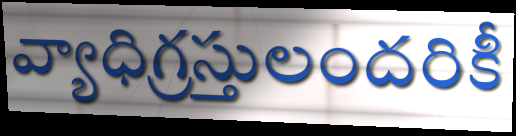
వ్యాధిగ్రస్తులందరికీ